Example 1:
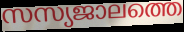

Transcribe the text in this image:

സസ്യജാലത്തെ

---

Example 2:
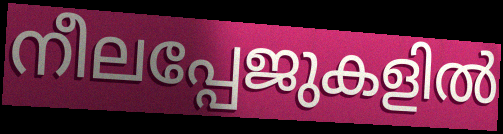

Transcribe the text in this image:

നീലപ്പേജുകളിൽ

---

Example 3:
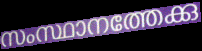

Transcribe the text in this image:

സംസ്ഥാനത്തേക്കു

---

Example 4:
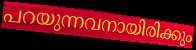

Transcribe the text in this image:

പറയുന്നവനായിരിക്കും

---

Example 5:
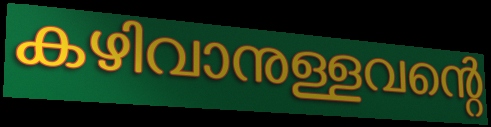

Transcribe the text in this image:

കഴിവാനുള്ളവന്റെ